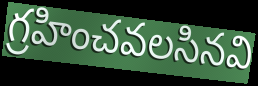
గ్రహించవలసినవి